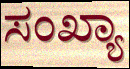
ಸಂಖ್ಯಾ